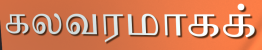
கலவரமாகக்